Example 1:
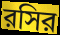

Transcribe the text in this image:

রসির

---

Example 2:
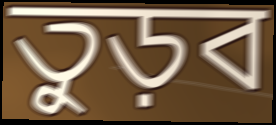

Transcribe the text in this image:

তুড়ব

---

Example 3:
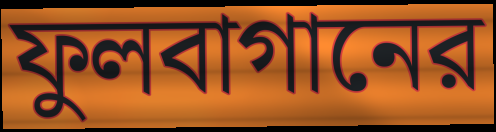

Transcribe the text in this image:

ফুলবাগানের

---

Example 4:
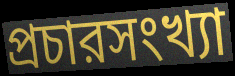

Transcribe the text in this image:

প্রচারসংখ্যা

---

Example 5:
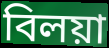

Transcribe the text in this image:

বিলয়া